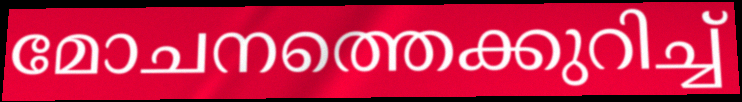
മോചനത്തെക്കുറിച്ച്